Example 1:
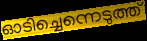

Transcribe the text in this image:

ഓടിച്ചെന്നെടുത്ത്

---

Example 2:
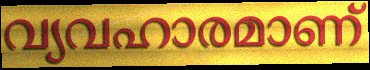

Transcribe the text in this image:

വ്യവഹാരമാണ്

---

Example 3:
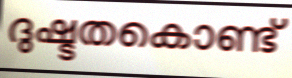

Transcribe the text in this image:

ദുഷ്ടതകൊണ്ട്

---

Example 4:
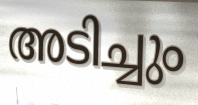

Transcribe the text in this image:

അടിച്ചും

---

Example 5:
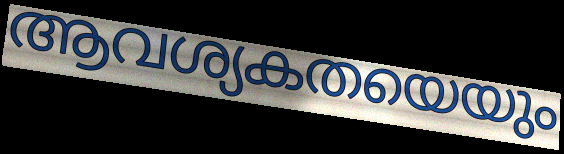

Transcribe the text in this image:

ആവശ്യകതയെയും